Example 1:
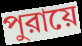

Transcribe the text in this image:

পুরায়ে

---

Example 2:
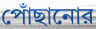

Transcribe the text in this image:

পোঁছানোর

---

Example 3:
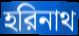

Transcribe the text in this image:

হরিনাথ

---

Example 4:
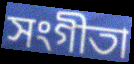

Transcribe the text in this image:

সংগীতা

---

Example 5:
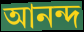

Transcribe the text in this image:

আনন্দ